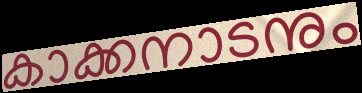
കാക്കനാടനും